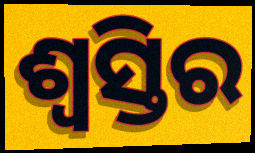
ଶ୍ୱସ୍ତିର